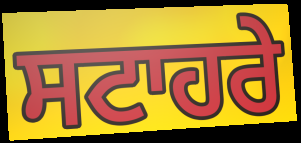
ਸਟਾਹਰੇ